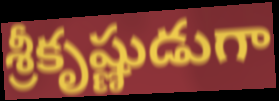
శ్రీకృష్ణుడుగా